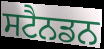
ਸਟੈਨਡਨ